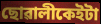
ছোৱালীকেইটা